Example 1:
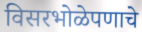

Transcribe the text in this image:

विसरभोळेपणाचे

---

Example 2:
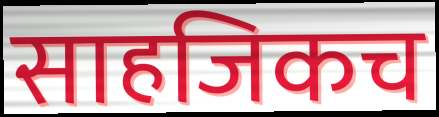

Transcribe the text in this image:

साहजिकच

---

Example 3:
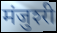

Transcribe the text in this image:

मंजुश्री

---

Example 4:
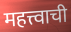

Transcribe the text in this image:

महत्त्वाची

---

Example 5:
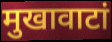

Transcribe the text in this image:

मुखावाटां